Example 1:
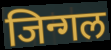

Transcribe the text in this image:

जिन्गल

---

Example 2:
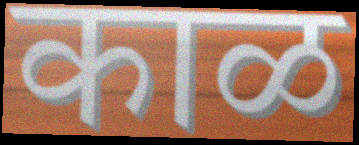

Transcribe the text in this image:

काळ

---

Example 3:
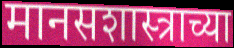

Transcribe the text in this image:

मानसशास्त्राच्या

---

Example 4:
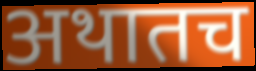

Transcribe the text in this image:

अथातच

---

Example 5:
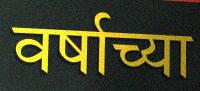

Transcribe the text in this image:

वर्षाच्या